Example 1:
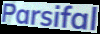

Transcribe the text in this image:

Parsifal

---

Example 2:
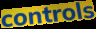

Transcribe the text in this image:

controls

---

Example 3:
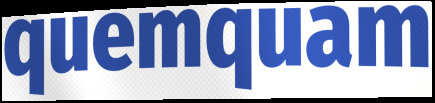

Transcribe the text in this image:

quemquam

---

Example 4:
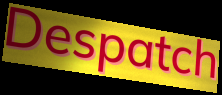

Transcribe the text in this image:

Despatch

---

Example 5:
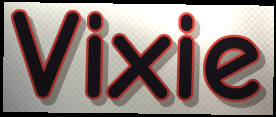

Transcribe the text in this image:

Vixie